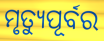
ମୃତ୍ୟୁପୂର୍ବର